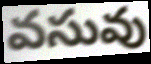
వసువు